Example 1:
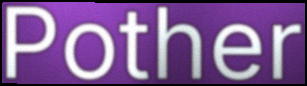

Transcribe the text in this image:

Pother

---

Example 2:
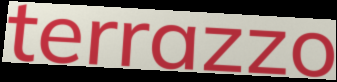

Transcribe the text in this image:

terrazzo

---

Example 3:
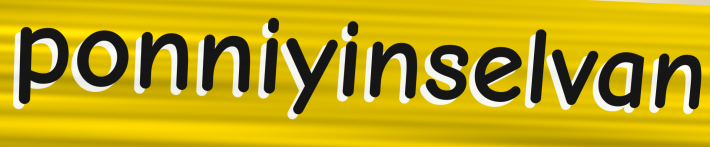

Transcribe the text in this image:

ponniyinselvan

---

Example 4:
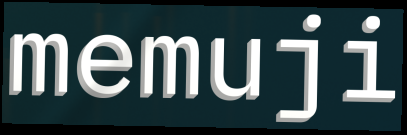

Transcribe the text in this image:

memuji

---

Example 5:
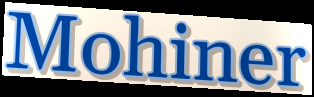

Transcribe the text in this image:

Mohiner